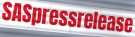
SASpressrelease